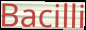
Bacilli